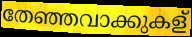
തേഞ്ഞവാക്കുകള്